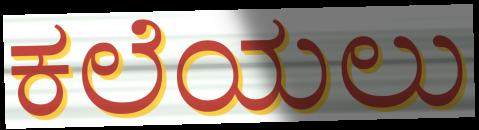
ಕಲೆಯಲು